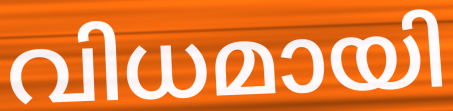
വിധമായി